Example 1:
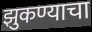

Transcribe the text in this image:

झुकण्याचा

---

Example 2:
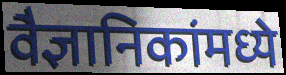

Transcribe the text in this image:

वैज्ञानिकांमध्ये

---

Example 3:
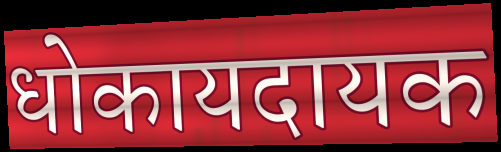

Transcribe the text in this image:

धोकायदायक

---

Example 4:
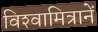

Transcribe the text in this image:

विश्वामित्रानें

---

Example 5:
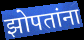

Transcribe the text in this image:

झोपतांना